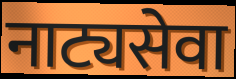
नाट्यसेवा